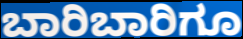
ಬಾರಿಬಾರಿಗೂ